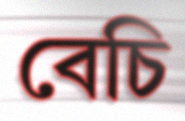
বেচি